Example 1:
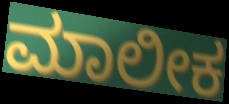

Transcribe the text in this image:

ಮಾಲೀಕ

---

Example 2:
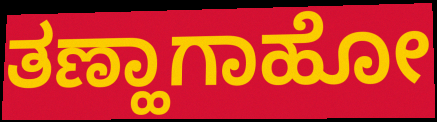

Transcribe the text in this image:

ತಣ್ಹಾಗಾಹೋ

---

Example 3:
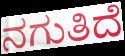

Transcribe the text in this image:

ನಗುತಿದೆ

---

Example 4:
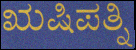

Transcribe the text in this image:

ಋಷಿಪತ್ನಿ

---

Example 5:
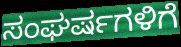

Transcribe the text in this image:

ಸಂಘರ್ಷಗಳಿಗೆ